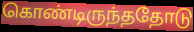
கொண்டிருந்ததோடு